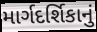
માર્ગદર્શિકાનું